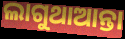
ଲାଗୁଥାଆନ୍ତା